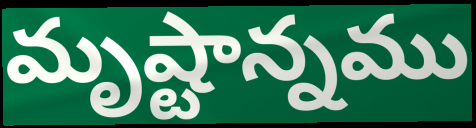
మృష్టాన్నము